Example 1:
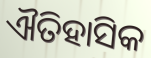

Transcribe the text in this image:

ଐତିହାସିକ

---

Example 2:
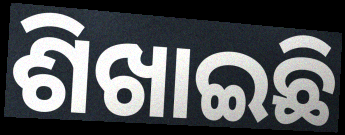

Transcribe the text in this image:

ଶିଖାଇଛି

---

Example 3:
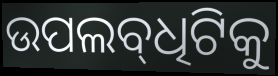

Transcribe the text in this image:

ଉପଲବ୍‌ଧିଟିକୁ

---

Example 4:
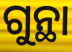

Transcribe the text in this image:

ଗୁନ୍ଥା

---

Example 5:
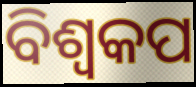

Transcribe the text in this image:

ବିଶ୍ୱକପ